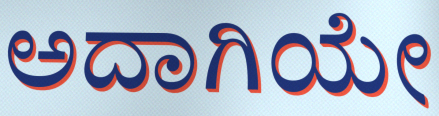
ಅದಾಗಿಯೇ